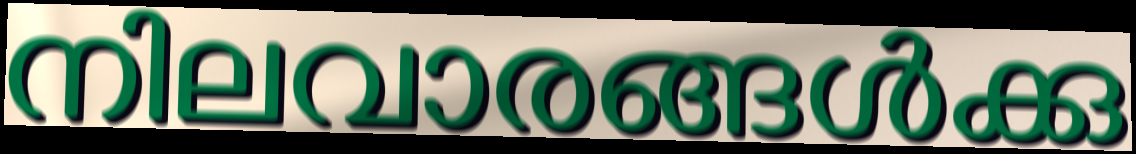
നിലവാരങ്ങൾക്കു